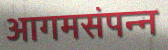
आगमसंपन्न